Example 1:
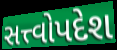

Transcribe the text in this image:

સત્ત્વોપદેશ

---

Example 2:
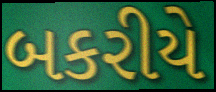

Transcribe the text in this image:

બકરીયે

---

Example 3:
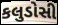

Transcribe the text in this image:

કલુડોસી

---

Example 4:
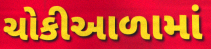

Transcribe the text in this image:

ચોકીઆળામાં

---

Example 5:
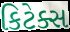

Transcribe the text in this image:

કિટેક્સ